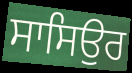
ਸਾਸਿਉਰ